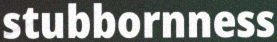
stubbornness